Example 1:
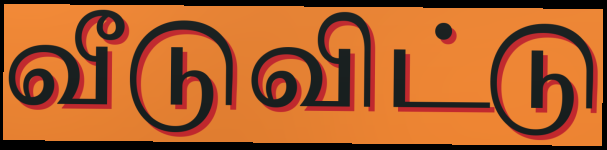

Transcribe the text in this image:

வீடுவிட்டு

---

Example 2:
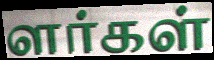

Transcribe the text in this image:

ளர்கள்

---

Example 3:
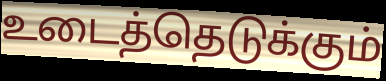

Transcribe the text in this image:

உடைத்தெடுக்கும்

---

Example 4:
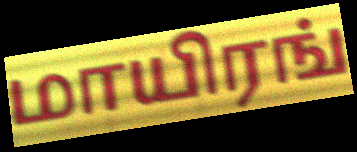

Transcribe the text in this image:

மாயிரங்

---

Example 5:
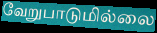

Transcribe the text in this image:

வேறுபாடுமில்லை